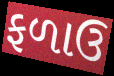
ફળાઉ